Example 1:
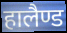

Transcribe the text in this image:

हालैण्ड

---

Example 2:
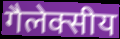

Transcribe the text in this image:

गैलेक्सीय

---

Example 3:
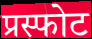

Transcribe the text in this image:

प्रस्फोट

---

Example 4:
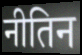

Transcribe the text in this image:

नीतिन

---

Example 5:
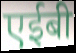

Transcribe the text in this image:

एईबी